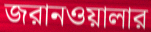
জরানওয়ালার